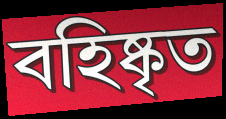
বহিষ্কৃত